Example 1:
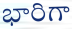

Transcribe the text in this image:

భారిగా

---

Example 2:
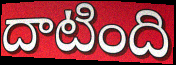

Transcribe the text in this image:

దాటింది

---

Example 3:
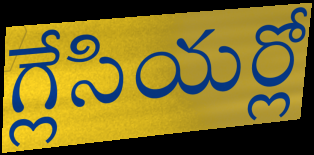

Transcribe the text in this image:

గ్లేసియర్లో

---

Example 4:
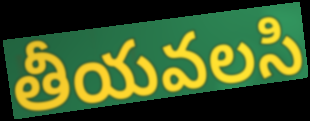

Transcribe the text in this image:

తీయవలసి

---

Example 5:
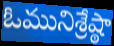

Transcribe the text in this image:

ఓమునిశ్రేష్ఠా